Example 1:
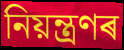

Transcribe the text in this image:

নিয়ন্ত্ৰণৰ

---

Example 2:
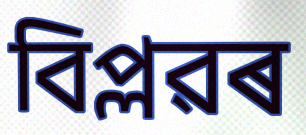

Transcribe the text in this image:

বিপ্লৱৰ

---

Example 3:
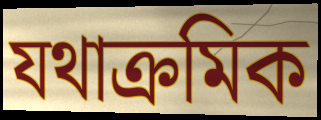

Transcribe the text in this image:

যথাক্ৰমিক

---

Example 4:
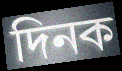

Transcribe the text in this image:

দিনক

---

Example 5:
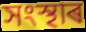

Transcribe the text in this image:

সংস্থাৰ